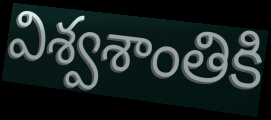
విశ్వశాంతికి